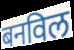
बनविल